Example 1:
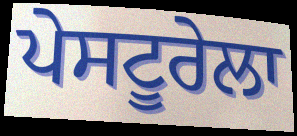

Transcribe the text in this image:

ਪੇਸਟੂਰੇਲਾ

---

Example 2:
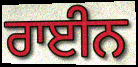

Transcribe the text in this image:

ਰਾਈਨ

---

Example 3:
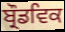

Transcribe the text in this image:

ਬ੍ਰੌਡਵਿਕ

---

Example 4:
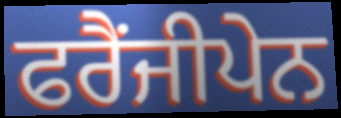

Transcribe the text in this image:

ਫਰੈਂਜੀਪੇਨ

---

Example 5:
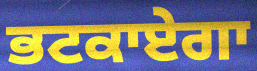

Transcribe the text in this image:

ਭਟਕਾਏਗਾ